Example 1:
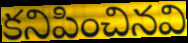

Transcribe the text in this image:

కనిపించినవి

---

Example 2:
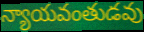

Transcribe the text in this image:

న్యాయవంతుడవు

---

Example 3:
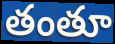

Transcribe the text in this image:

తంతూ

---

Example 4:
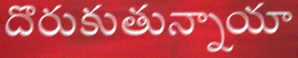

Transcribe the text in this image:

దొరుకుతున్నాయా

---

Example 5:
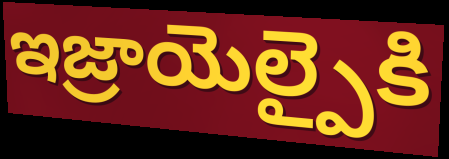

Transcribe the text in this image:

ఇజ్రాయెల్పైకి